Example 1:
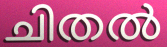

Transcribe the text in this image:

ചിതൽ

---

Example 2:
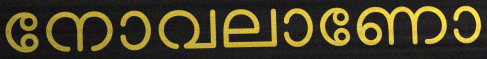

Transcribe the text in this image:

നോവലാണോ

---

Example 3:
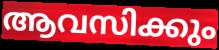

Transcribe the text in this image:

ആവസിക്കും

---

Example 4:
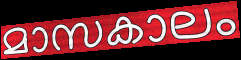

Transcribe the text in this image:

മാസകാലം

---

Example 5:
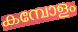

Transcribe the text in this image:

കമ്പോളം